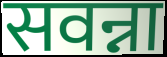
सवन्ना